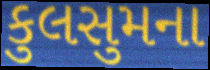
કુલસુમના